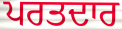
ਪਰਤਦਾਰ